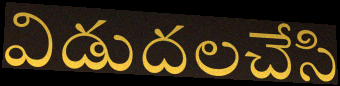
విడుదలచేసి